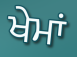
ਖੇਮਾਂ